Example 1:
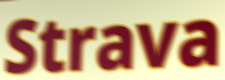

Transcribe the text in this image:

Strava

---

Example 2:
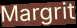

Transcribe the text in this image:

Margrit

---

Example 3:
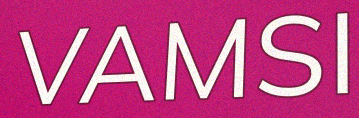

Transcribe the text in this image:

VAMSI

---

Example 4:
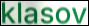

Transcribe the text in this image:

klasov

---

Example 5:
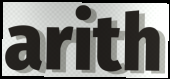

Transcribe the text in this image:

arith